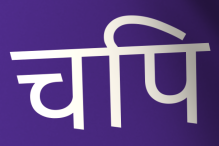
चपि